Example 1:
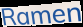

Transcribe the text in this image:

Ramen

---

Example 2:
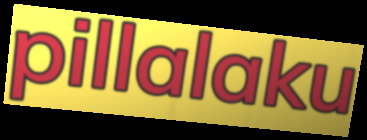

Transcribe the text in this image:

pillalaku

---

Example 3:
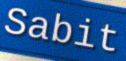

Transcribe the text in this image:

Sabit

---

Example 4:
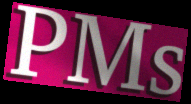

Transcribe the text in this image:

PMs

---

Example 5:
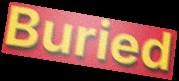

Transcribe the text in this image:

Buried